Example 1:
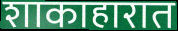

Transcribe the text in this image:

शाकाहारात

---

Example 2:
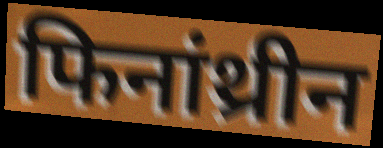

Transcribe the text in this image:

फिनांथ्रीन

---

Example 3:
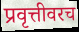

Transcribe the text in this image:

प्रवृत्तीवरच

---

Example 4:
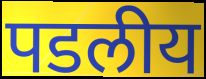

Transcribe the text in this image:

पडलीय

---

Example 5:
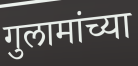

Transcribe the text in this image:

गुलामांच्या